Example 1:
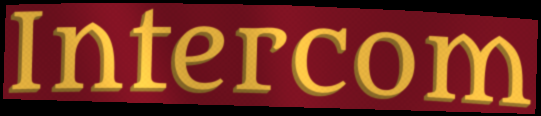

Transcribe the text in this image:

Intercom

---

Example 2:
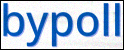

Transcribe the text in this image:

bypoll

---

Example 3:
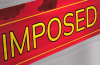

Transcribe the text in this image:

IMPOSED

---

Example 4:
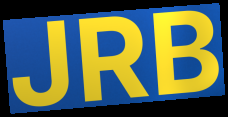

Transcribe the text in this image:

JRB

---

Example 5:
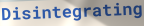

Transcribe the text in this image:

Disintegrating